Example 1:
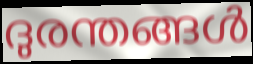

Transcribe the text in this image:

ദുരന്തങ്ങൾ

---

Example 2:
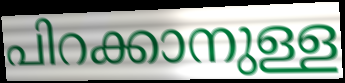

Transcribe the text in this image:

പിറക്കാനുള്ള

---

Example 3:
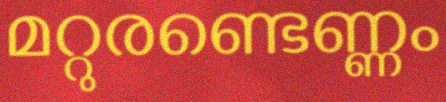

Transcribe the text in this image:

മറ്റുരണ്ടെണ്ണം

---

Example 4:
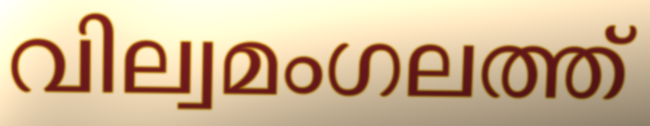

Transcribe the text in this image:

വില്വമംഗലത്ത്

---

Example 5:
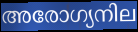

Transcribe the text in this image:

അരോഗ്യനില